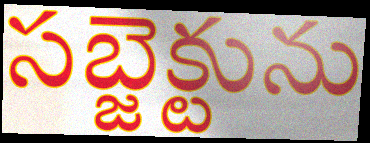
సబ్జెక్టును